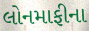
લોનમાફીના